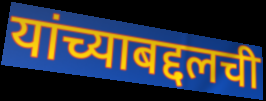
यांच्याबद्दलची